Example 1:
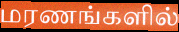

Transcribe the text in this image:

மரணங்களில்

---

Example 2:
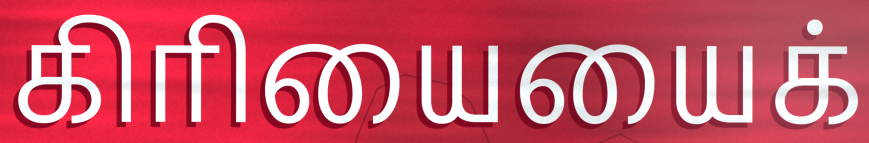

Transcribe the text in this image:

கிரியையைக்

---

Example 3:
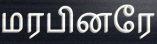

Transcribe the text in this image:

மரபினரே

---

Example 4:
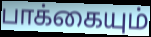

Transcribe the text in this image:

பாக்கையும்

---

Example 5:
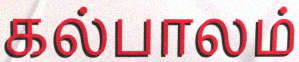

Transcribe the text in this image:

கல்பாலம்